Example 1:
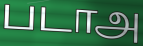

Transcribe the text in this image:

படாஅ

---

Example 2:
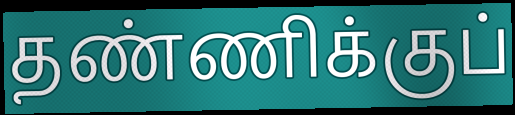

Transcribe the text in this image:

தண்ணிக்குப்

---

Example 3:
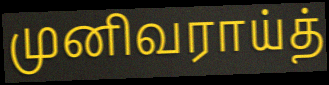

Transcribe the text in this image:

முனிவராய்த்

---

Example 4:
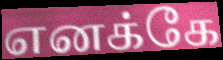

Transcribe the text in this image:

எனக்கே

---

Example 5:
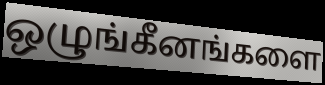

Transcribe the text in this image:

ஒழுங்கீனங்களை